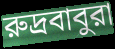
রুদ্রবাবুরা